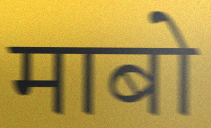
माबो